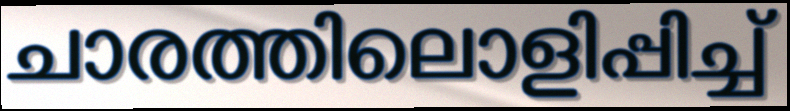
ചാരത്തിലൊളിപ്പിച്ച്